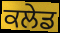
ਕਲੇਡ